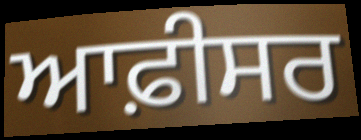
ਆਫ਼ੀਸਰ